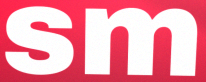
sm